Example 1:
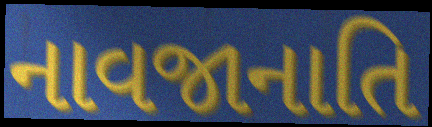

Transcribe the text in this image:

નાવજાનાતિ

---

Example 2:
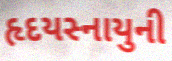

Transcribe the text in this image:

હૃદયસ્નાયુની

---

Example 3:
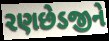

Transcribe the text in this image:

રણછેડજીને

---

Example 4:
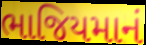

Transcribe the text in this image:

ભાજિયમાનં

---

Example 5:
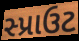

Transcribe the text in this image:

સ્પ્રાઉટ